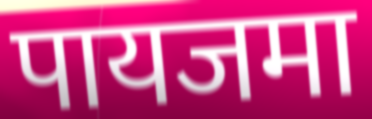
पायजमा